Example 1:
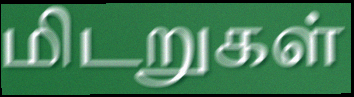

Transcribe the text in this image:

மிடறுகள்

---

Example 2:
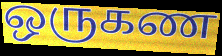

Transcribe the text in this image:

ஒருகண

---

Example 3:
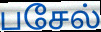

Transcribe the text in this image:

பசேல்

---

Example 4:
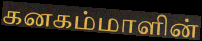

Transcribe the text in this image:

கனகம்மாளின்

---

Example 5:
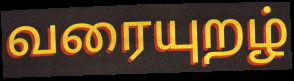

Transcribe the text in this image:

வரையுறழ்